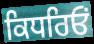
ਕਿਧਰਿਓਂ